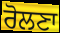
ਰੋਲਣਾ